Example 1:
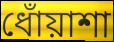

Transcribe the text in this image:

ধোঁয়াশা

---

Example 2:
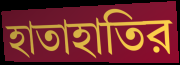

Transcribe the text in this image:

হাতাহাতির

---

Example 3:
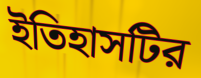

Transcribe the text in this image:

ইতিহাসটির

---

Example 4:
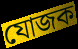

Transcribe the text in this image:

যোজক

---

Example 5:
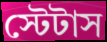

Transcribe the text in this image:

স্টেটাস